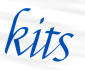
kits